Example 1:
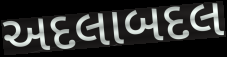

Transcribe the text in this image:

અદલાબદલ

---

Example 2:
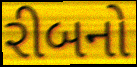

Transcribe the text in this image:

રીબનો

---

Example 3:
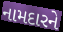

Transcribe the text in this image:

નામદારને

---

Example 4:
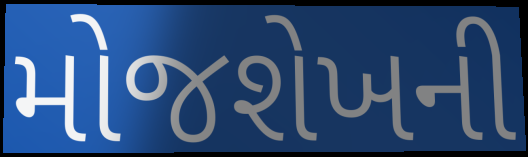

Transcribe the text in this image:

મોજશેખની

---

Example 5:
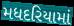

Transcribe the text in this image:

મધદરિયામાં